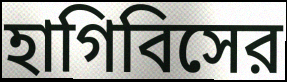
হাগিবিসের